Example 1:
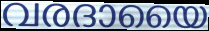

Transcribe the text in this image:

വരദായൈ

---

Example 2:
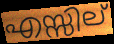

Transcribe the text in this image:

എസ്സില്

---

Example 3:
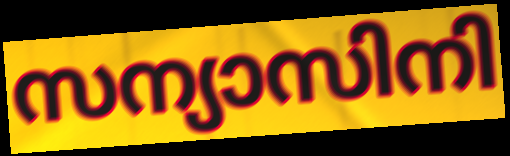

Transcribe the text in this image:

സന്യാസിനി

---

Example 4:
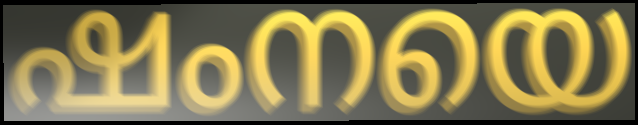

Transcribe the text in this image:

ഷംനയെ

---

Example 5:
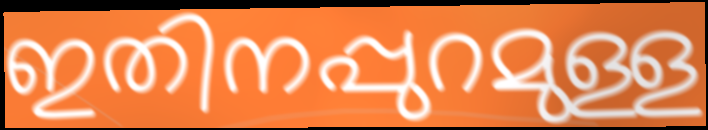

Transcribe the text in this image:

ഇതിനപ്പുറമുള്ള